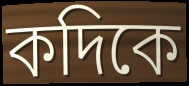
কদিকে